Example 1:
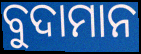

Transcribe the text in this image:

ବୁଦାମାନ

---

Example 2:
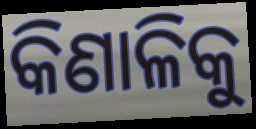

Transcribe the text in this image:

କିଣାଳିକୁ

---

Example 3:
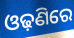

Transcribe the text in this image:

ଓଢ଼ଣିରେ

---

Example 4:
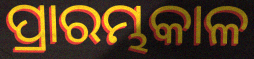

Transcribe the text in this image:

ପ୍ରାରମ୍ଭକାଳ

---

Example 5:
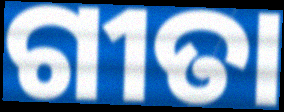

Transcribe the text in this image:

ଗୀତା